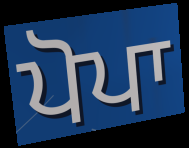
ਪੋਪਾ